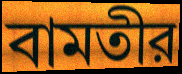
বামতীর